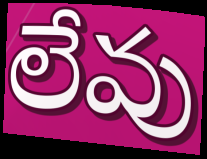
లేవు